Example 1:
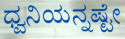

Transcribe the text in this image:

ಧ್ವನಿಯನ್ನಷ್ಟೇ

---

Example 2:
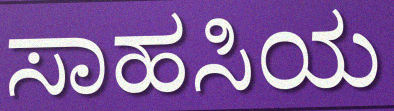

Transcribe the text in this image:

ಸಾಹಸಿಯ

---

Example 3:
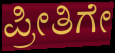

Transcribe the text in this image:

ಪ್ರೀತಿಗೇ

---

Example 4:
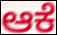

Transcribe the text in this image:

ಆಕೆ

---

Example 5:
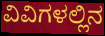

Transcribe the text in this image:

ವಿವಿಗಳಲ್ಲಿನ